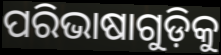
ପରିଭାଷାଗୁଡ଼ିକୁ